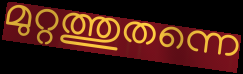
മുറ്റത്തുതന്നെ